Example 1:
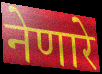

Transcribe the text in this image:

नेणारे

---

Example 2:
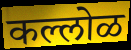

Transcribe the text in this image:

कल्लोळ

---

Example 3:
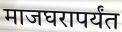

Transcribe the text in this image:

माजघरापर्यंत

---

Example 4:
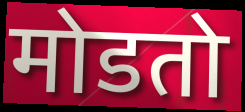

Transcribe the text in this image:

मोडतो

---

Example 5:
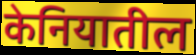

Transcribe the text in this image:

केनियातील